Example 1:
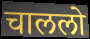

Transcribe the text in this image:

चाललो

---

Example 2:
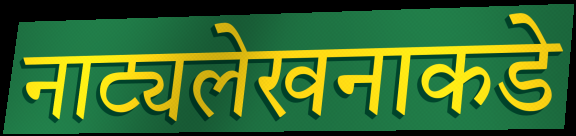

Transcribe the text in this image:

नाट्यलेखनाकडे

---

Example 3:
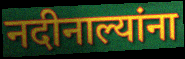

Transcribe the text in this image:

नदीनाल्यांना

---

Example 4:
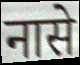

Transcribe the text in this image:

नासे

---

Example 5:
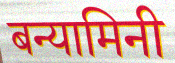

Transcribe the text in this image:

बन्यामिनी